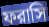
ফরাসি